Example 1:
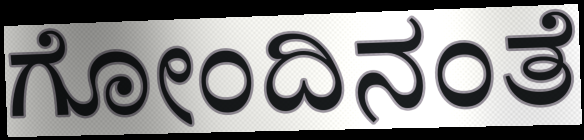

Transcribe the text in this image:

ಗೋಂದಿನಂತೆ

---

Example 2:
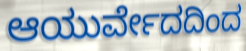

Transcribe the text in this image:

ಆಯುರ್ವೇದದಿಂದ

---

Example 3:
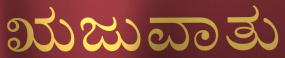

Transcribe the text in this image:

ಋಜುವಾತು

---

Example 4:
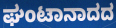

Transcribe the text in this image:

ಘಂಟಾನಾದದ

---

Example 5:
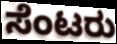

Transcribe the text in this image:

ಸೆಂಟರು